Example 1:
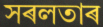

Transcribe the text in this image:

সৰলতাৰ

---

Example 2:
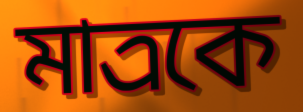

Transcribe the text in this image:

মাত্ৰকে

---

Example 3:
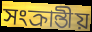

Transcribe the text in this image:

সংক্ৰান্তীয়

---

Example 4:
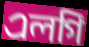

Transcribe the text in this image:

এলগি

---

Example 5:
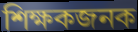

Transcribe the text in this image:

শিক্ষকজনক